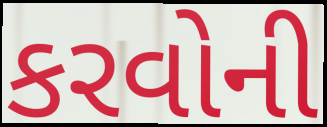
કરવોની